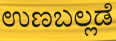
ಉಣಬಲ್ಲಡೆ